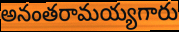
అనంతరామయ్యగారు